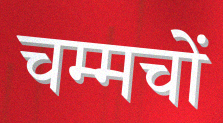
चम्मचों